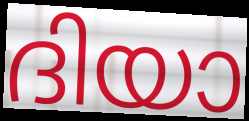
ദിയാ